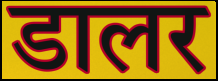
डालर